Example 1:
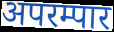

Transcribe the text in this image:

अपरम्पार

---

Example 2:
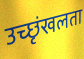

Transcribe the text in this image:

उच्छृंखलता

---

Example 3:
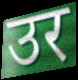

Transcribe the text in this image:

उर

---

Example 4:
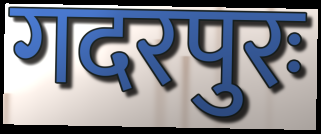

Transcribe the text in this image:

गदरपुरः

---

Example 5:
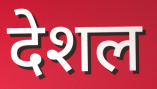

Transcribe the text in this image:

देशल